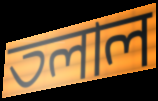
তলাল